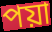
পয়া